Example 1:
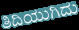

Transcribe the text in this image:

ತಿದಿಯುಗಿದು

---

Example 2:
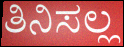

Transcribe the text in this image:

ತಿನಿಸಲ್ಲ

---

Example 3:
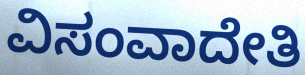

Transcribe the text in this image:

ವಿಸಂವಾದೇತಿ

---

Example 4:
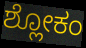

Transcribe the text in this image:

ಶ್ಲೋಕಂ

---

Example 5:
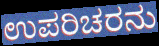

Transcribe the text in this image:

ಉಪರಿಚರನು